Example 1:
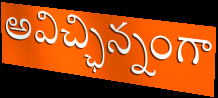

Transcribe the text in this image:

అవిచ్ఛిన్నంగా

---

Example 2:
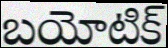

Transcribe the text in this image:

బయోటిక్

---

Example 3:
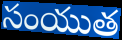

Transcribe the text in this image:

సంయుత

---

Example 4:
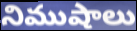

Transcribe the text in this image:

నిముషాలు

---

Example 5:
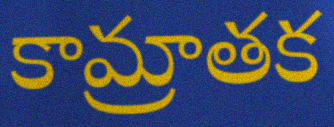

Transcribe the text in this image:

కామ్రాతక